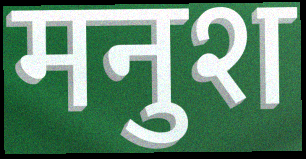
मनुश